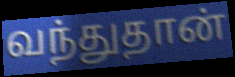
வந்துதான்